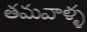
తమవాళ్ళ